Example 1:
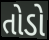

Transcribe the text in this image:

તોડો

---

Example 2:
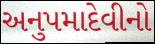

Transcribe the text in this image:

અનુપમાદેવીનો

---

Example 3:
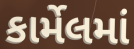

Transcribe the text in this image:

કાર્મેલમાં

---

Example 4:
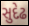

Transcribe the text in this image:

સુદેઢ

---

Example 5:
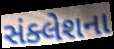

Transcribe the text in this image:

સંક્લેશના